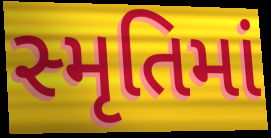
સ્મૃતિમાં